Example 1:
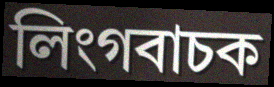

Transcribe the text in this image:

লিংগবাচক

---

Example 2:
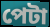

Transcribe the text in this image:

পেটা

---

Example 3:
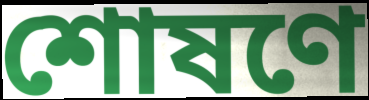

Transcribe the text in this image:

শোষণে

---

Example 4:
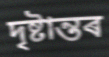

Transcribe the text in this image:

দৃষ্টান্তৰ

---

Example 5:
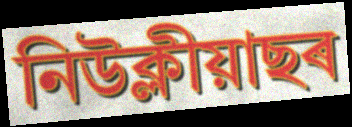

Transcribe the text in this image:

নিউক্লীয়াছৰ